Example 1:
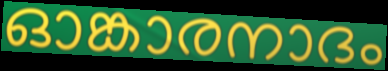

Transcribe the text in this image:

ഓങ്കാരനാദം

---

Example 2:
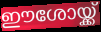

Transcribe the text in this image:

ഈശോയ്ക്ക്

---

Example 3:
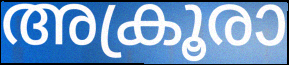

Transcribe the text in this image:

അക്രൂരാ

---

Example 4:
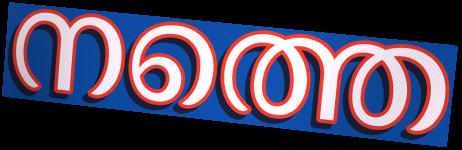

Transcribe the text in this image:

നത്തെ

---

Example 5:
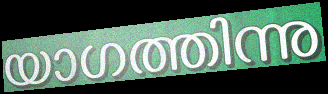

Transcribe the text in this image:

യാഗത്തിന്നു